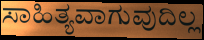
ಸಾಹಿತ್ಯವಾಗುವುದಿಲ್ಲ